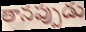
తానప్పుడు